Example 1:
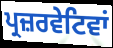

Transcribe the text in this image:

ਪ੍ਰਜ਼ਰਵੇਟਿਵਾਂ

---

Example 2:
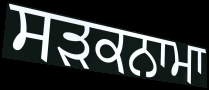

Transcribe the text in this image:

ਸਡ਼ਕਨਾਮਾ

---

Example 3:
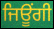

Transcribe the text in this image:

ਜਿਊਂਗੀ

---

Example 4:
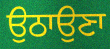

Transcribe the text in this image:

ਉਠਾਉਣਾ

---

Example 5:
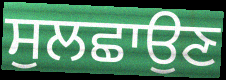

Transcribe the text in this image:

ਸੁਲਛਾਉਣ